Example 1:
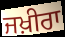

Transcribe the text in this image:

ਜਖ਼ੀਰਾ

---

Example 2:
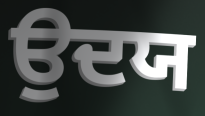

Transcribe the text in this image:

ਉਦਯ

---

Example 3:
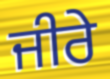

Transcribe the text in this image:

ਜੀਰੇ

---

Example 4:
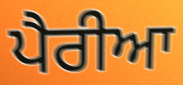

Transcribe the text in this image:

ਪੈਰੀਆ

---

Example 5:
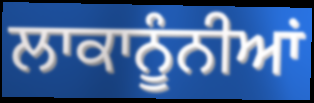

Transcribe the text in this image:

ਲਾਕਾਨੂੰਨੀਆਂ